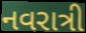
નવરાત્રી